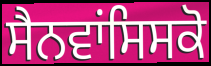
ਸੈਨਵਾਂਸਿਸਕੋ